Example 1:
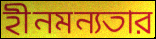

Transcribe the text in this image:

হীনমন্যতার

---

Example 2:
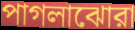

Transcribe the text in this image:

পাগলাঝোরা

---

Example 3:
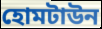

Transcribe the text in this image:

হোমটাউন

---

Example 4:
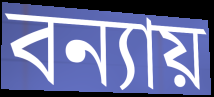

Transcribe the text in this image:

বন্যায়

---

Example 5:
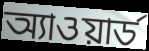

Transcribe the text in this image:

অ্যাওয়ার্ড